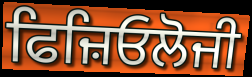
ਫਿਜ਼ਿਓਲੋਜੀ